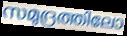
സമുദ്രത്തിലോ